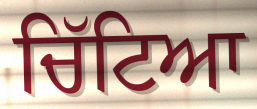
ਚਿੱਟਿਆ